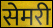
सेमरी